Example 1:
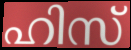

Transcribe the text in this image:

ഹിസ്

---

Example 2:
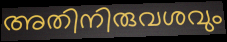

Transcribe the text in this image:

അതിനിരുവശവും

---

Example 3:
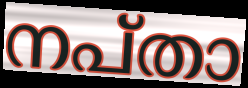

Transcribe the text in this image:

നപ്താ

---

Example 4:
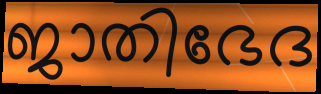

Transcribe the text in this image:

ജാതിഭേദ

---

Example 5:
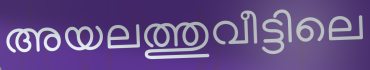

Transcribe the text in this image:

അയലത്തുവീട്ടിലെ